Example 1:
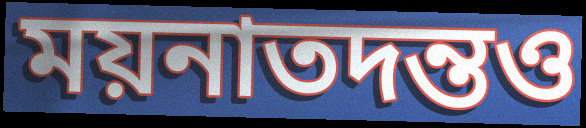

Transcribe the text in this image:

ময়নাতদন্তও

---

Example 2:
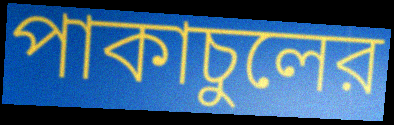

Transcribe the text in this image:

পাকাচুলের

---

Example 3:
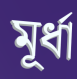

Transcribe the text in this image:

মূর্ধা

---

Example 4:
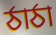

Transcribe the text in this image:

ঠাঠা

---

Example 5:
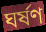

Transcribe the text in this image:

ঘর্ষণ